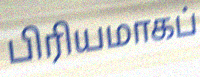
பிரியமாகப்